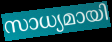
സാധ്യമായി